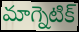
మాగ్నెటిక్